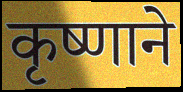
कृष्णाने